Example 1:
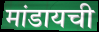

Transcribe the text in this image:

मांडायची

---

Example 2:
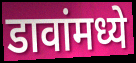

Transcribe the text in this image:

डावांमध्ये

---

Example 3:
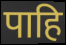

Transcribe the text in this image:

पाहि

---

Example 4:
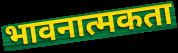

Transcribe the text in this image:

भावनात्मकता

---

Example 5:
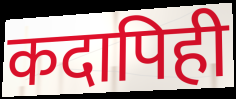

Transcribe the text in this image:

कदापिही